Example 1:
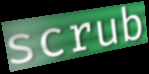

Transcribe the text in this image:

scrub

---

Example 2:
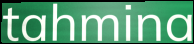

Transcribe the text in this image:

tahmina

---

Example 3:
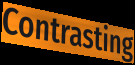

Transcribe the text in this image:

Contrasting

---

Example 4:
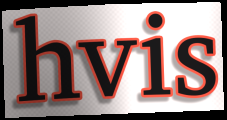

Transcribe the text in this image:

hvis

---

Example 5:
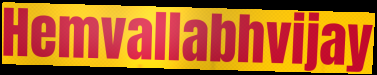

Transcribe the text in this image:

Hemvallabhvijay